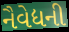
નૈવેદ્યની